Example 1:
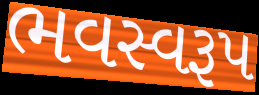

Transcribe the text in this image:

ભવસ્વરૂપ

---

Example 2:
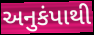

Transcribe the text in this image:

અનુકંપાથી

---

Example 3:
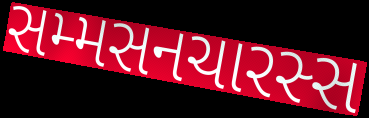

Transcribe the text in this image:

સમ્મસનચારસ્સ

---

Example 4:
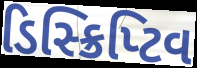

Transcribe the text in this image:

ડિસ્ક્રિપ્ટિવ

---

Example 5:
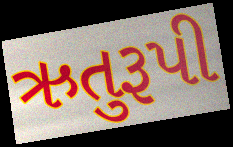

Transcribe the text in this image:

ઋતુરૂપી